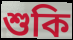
শুকি